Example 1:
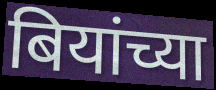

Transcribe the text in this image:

बियांच्या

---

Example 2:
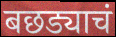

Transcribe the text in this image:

बछड्याचं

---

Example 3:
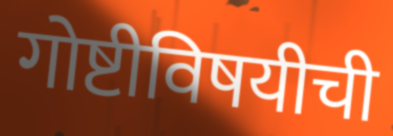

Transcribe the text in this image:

गोष्टीविषयीची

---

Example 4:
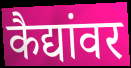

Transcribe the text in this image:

कैद्यांवर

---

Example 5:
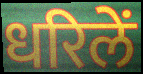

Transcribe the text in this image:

धरिलें